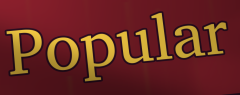
Popular